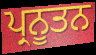
ਪ੍ਰਨੂਤਨ